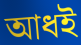
আধই